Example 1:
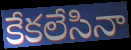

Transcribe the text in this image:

కేకలేసినా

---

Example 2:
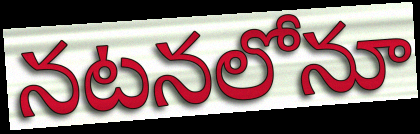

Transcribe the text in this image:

నటనలోనూ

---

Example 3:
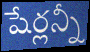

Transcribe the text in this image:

షేర్లన్నీ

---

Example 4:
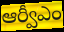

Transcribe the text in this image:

ఆర్వీఎం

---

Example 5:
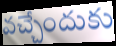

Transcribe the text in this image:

వచ్చేందుకు